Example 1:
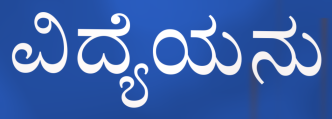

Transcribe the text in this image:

ವಿದ್ಯೆಯನು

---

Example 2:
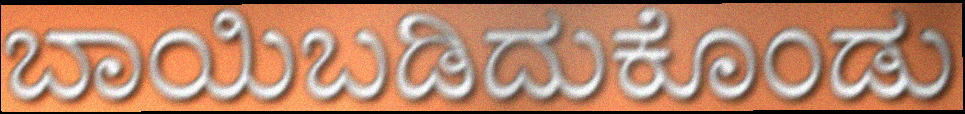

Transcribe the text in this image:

ಬಾಯಿಬಡಿದುಕೊಂಡು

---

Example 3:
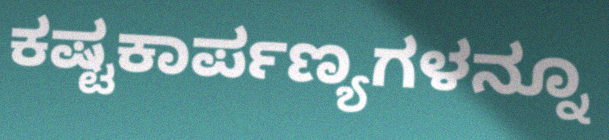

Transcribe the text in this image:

ಕಷ್ಟಕಾರ್ಪಣ್ಯಗಳನ್ನೂ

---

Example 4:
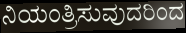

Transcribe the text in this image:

ನಿಯಂತ್ರಿಸುವುದರಿಂದ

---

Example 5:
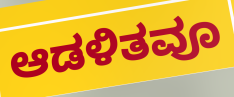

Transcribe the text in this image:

ಆಡಳಿತವೂ